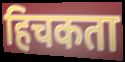
हिचकता